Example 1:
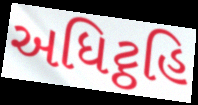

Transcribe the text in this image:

અધિટ્ઠહિ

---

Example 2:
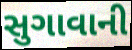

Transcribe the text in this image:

સુગાવાની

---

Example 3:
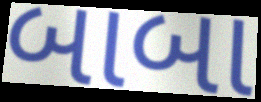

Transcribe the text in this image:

બાબા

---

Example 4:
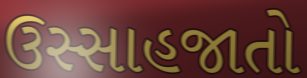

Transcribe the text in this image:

ઉસ્સાહજાતો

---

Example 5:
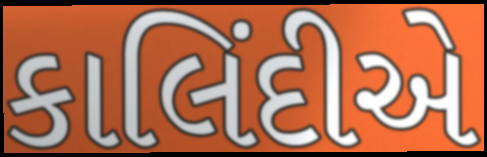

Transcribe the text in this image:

કાલિંદીએ